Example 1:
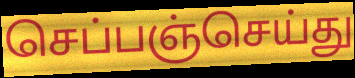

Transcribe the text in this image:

செப்பஞ்செய்து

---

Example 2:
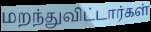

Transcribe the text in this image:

மறந்துவிட்டார்கள்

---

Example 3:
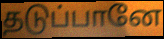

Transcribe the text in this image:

தடுப்பானே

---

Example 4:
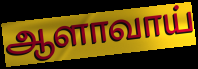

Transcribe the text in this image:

ஆளாவாய்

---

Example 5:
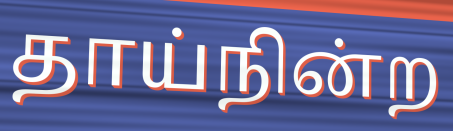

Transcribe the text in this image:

தாய்நின்ற